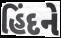
હિંદને